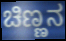
ಚಿಣ್ಣನ